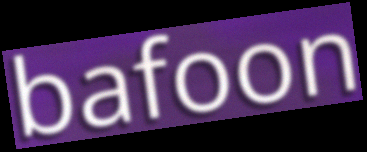
bafoon